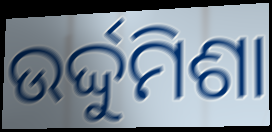
ଉର୍ଦ୍ଦୁମିଶା